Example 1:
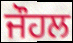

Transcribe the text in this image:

ਜੌਹਲ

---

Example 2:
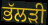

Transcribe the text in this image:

ਭੱਲੜੀ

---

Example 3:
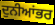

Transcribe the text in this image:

ਦੁਨੀਆਂਭਰ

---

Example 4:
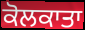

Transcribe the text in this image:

ਕੋਲਕਾਤਾ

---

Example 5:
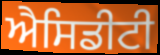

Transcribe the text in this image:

ਐਸਿਡੀਟੀ